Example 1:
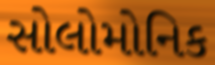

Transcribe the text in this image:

સોલોમોનિક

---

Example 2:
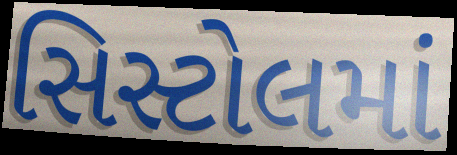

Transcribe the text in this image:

સિસ્ટોલમાં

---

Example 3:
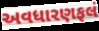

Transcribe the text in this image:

અવધારણફલં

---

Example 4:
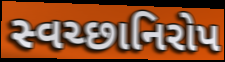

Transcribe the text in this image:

સ્વચ્છાનિરોપ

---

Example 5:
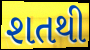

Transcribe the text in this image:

શતથી